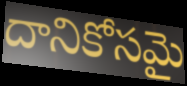
దానికోసమై